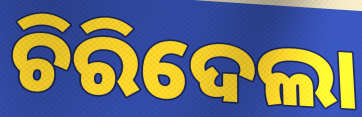
ଚିରିଦେଲା